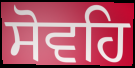
ਸੋਵਹਿ